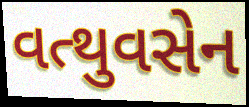
વત્થુવસેન